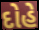
દોહે